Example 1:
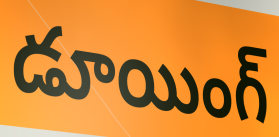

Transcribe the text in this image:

డూయింగ్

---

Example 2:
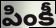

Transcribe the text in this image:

పింకీ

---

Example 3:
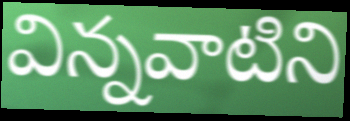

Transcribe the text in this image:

విన్నవాటిని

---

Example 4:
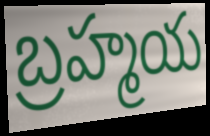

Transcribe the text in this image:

బ్రహ్మయ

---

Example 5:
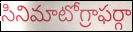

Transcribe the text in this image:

సినిమాటోగ్రాఫర్గా